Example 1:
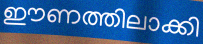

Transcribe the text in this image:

ഈണത്തിലാക്കി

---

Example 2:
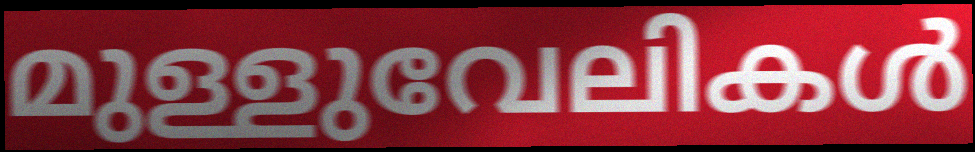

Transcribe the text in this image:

മുള്ളുവേലികൾ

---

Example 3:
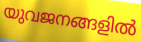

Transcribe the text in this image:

യുവജനങ്ങളിൽ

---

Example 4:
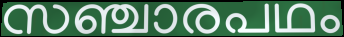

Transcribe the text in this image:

സഞ്ചാരപഥം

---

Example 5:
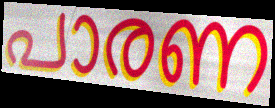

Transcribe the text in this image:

പാരണ